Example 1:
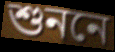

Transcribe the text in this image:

শুননে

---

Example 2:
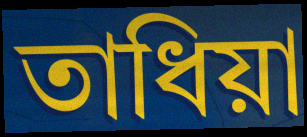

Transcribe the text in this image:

তাধিয়া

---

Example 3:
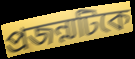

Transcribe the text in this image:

প্রজন্মটিকে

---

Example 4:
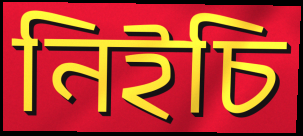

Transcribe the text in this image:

নিইচি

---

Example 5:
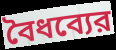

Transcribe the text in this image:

বৈধব্যের